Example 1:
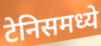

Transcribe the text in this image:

टेनिसमध्ये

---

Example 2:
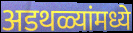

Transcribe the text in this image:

अडथळ्यांमध्ये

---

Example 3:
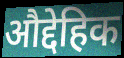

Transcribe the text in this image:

औद्देहिक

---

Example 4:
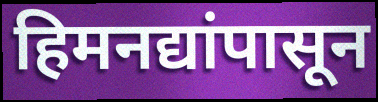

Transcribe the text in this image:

हिमनद्यांपासून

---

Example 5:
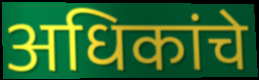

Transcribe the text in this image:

अधिकांचे